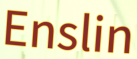
Enslin